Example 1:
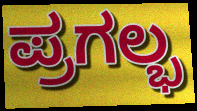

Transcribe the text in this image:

ಪ್ರಗಲ್ಭ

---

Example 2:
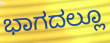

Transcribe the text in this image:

ಭಾಗದಲ್ಲೂ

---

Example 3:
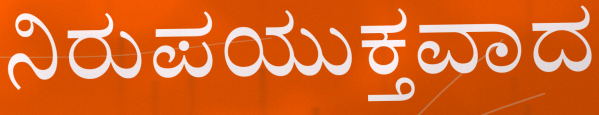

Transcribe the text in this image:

ನಿರುಪಯುಕ್ತವಾದ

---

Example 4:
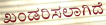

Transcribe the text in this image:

ಖಂಡರಿಸಲಾಗಿದೆ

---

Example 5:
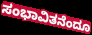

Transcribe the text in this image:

ಸಂಭಾವಿತನೆಂದೂ